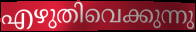
എഴുതിവെക്കുന്നു